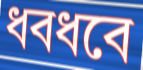
ধবধবে